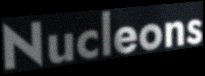
Nucleons